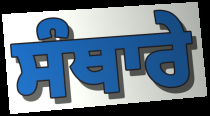
ਸੰਥਾਰੇ